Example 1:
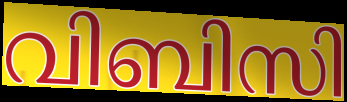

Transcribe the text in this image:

വിബിസി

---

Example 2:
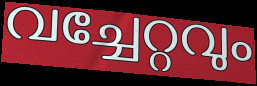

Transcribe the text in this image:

വച്ചേറ്റവും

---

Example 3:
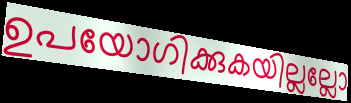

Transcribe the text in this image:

ഉപയോഗിക്കുകയില്ലല്ലോ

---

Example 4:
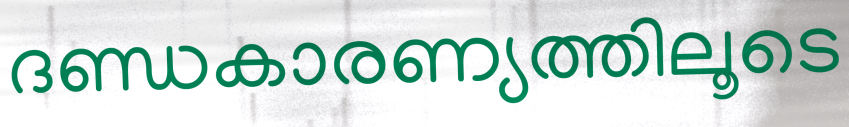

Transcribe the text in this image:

ദണ്ഡകാരണ്യത്തിലൂടെ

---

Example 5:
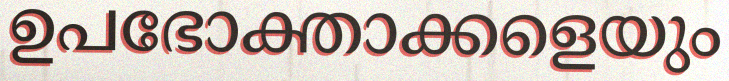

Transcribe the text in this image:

ഉപഭോക്താക്കളെയും